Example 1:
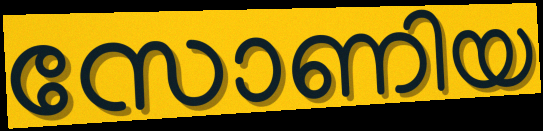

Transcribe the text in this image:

സോണിയ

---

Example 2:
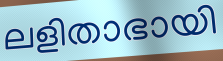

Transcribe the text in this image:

ലളിതാഭായി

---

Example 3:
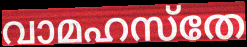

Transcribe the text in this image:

വാമഹസ്തേ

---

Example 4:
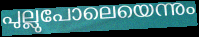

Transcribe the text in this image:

പുല്ലുപോലെയെന്നും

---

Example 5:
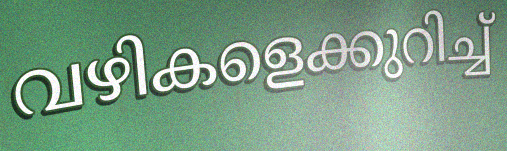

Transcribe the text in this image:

വഴികളെക്കുറിച്ച്